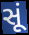
સૂં